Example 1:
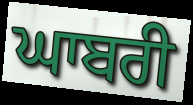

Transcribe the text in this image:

ਘਾਬਰੀ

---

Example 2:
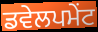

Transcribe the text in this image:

ਡਵੇਲਪਮੇਂਟ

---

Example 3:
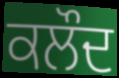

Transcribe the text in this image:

ਕਲੌਦ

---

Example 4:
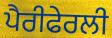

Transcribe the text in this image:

ਪੈਰੀਫੇਰਲੀ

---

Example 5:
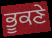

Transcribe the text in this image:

ਭੂਕਣੇ